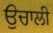
ਉਚਾਲੀ